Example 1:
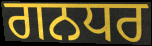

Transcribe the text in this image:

ਗਨਧਰ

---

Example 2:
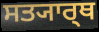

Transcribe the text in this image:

ਸਤ੍ਯਾਰ੍ਥ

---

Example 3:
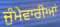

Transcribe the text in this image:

ਜੁੰਮੇਵਾਰੀਆਂ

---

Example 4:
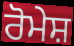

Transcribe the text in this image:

ਰੋਮੇਸ਼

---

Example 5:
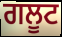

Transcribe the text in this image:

ਗਲੂਟ